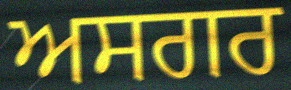
ਅਸਗਰ